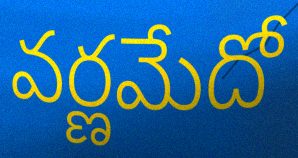
వర్ణమేదో